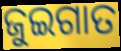
ଜୁଇଗାତ